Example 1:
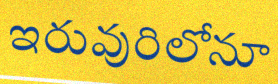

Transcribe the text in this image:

ఇరువురిలోనూ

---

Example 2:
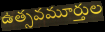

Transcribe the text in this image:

ఉత్సవమూర్తుల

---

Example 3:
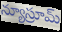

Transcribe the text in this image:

న్యూస్రూమ్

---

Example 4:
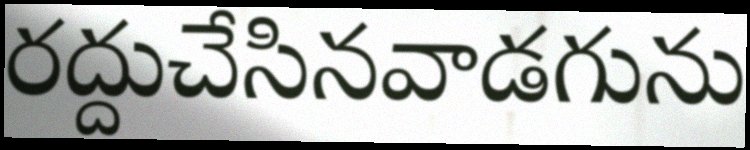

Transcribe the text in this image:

రద్దుచేసినవాడగును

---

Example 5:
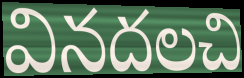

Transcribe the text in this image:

వినదలచి